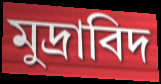
মুদ্ৰাবিদ